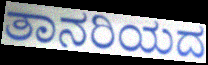
ತಾನರಿಯದ